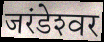
जरंडेश्वर